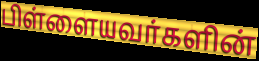
பிள்ளையவர்களின்